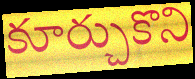
కూర్చుకొని